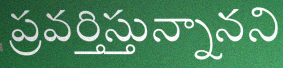
ప్రవర్తిస్తున్నానని